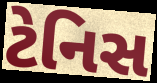
ટેનિસ